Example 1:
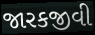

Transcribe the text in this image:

જારકજીવી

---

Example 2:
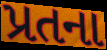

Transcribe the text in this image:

પ્રતના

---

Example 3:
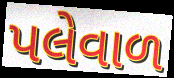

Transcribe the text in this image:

પલેવાળ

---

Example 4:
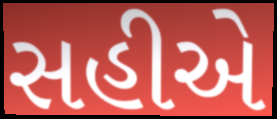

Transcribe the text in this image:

સહીએ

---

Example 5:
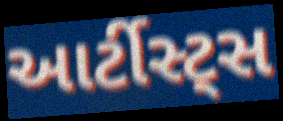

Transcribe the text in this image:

આર્ટીસ્ટ્સ